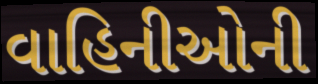
વાહિનીઓની